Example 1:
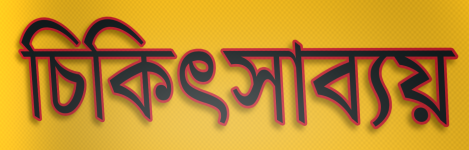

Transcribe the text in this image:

চিকিৎসাব্যয়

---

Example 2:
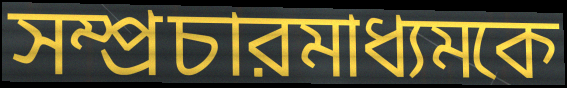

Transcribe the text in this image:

সম্প্রচারমাধ্যমকে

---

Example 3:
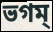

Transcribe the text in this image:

ভগম্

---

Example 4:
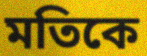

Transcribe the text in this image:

মতিকে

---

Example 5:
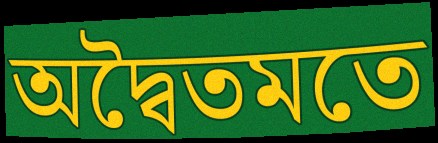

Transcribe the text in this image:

অদ্বৈতমতে